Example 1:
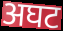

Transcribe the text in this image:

अघट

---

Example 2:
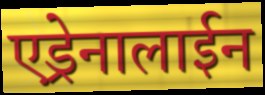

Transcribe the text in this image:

एड्रेनालाईन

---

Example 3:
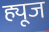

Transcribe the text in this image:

ह्यूज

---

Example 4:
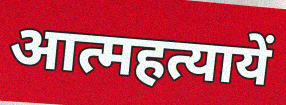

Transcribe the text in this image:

आत्महत्यायें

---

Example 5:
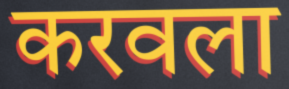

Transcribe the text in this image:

करवला